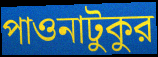
পাওনাটুকুর